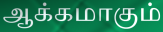
ஆக்கமாகும்